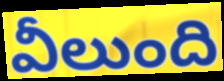
వీలుంది